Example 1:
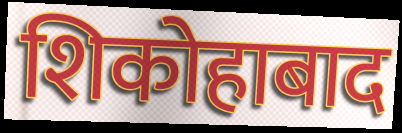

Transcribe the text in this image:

शिकोहाबाद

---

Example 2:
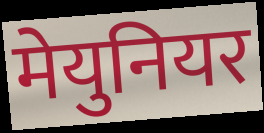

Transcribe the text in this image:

मेयुनियर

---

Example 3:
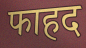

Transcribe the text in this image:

फाहद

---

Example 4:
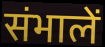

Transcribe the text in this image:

संभालें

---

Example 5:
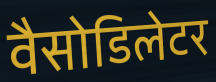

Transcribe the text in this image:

वैसोडिलेटर